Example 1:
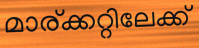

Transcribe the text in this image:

മാര്ക്കറ്റിലേക്ക്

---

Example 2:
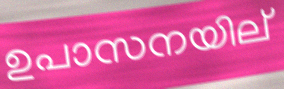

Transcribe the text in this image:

ഉപാസനയില്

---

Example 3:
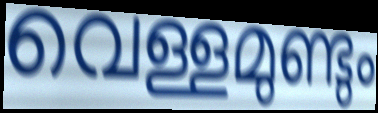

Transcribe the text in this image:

വെള്ളമുണ്ടും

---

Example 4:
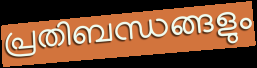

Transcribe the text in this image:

പ്രതിബന്ധങ്ങളും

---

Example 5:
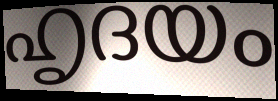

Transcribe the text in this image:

ഹൃദയം